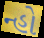
ન્હો